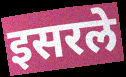
इसरले